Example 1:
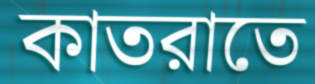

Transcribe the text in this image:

কাতরাতে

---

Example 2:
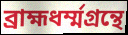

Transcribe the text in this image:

ব্রাহ্মধর্ম্মগ্রন্থে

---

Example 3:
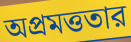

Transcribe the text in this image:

অপ্রমত্ততার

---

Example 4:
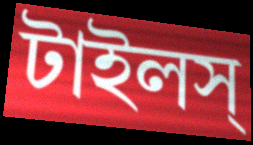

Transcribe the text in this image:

টাইলস্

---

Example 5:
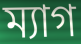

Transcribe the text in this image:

ম্যাগ